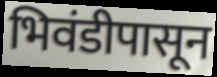
भिवंडीपासून